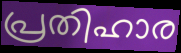
പ്രതിഹാര